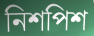
নিশপিশ